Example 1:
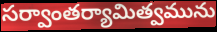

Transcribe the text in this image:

సర్వాంతర్యామిత్వమును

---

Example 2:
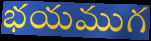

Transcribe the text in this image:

భయముగ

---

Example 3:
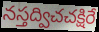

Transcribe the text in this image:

నస్తద్విచచక్షిరే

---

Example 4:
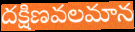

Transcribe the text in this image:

దక్షిణవలమాన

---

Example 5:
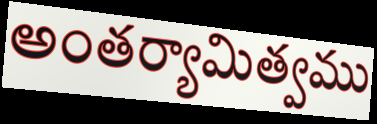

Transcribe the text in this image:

అంతర్యామిత్వము